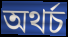
অথৰ্চ